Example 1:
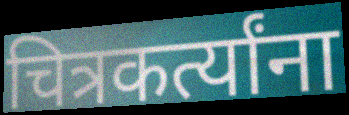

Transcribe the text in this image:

चित्रकर्त्यांना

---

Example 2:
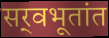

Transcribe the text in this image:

सर्वभूतांत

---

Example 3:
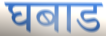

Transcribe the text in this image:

घबाड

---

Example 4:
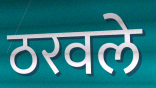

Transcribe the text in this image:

ठरवले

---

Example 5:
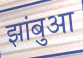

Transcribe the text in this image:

झांबुआ